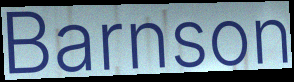
Barnson